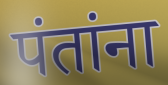
पंतांना